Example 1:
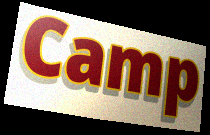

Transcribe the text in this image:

Camp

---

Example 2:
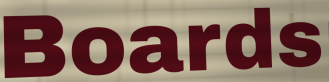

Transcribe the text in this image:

Boards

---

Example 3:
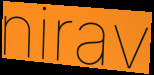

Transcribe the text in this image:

nirav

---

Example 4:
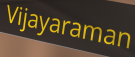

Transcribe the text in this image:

Vijayaraman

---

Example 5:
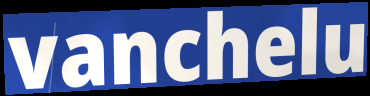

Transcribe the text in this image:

vanchelu